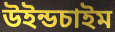
উইন্ডচাইম